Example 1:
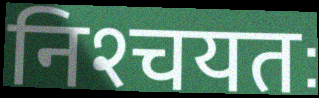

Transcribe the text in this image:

निश्चयतः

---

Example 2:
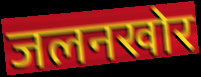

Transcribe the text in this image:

जलनखोर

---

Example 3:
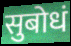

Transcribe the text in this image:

सुबोधं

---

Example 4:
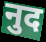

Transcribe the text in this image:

नुद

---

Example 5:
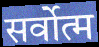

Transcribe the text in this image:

सर्वोत्म